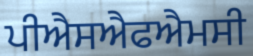
ਪੀਐਸਐਫਐਮਸੀ